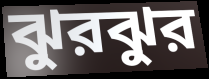
ঝুরঝুর